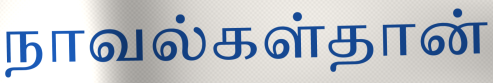
நாவல்கள்தான்